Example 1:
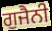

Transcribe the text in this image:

ਗੁਜੈਨੀ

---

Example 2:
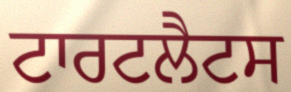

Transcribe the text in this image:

ਟਾਰਟਲੈਟਸ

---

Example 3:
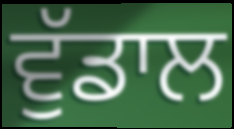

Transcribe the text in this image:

ਵੁੱਡਾਲ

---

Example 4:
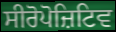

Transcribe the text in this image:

ਸੀਰੋਪੋਜ਼ਿਟਿਵ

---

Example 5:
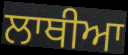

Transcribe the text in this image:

ਲਾਥੀਆ